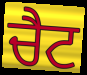
ਚੈਟ